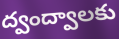
ద్వంద్వాలకు